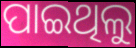
ପାଇଥିଲୁ